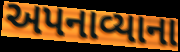
અપનાવ્યાના